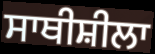
ਸਾਥੀਸ਼ੀਲਾ